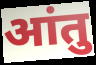
आंतु